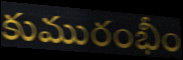
కుమురంభీం